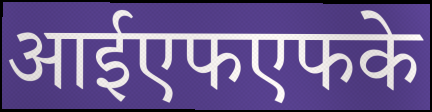
आईएफएफके